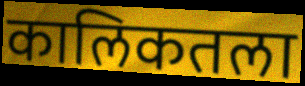
कालिकतला